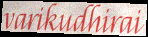
varikudhirai